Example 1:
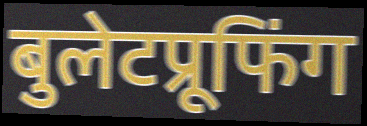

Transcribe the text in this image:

बुलेटप्रूफिंग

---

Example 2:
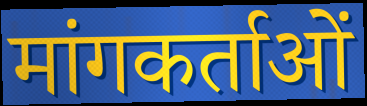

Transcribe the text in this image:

मांगकर्ताओं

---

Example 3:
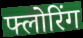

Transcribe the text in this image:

फ्लोरिंग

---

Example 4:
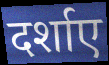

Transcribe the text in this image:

दर्शाए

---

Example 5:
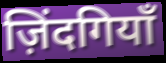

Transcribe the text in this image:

ज़िंदगियाँ